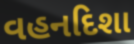
વહનદિશા